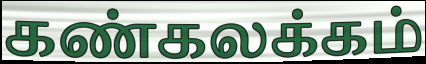
கண்கலக்கம்